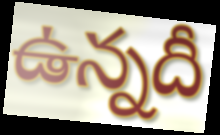
ఉన్నదీ